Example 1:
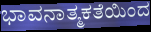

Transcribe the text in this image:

ಭಾವನಾತ್ಮಕತೆಯಿಂದ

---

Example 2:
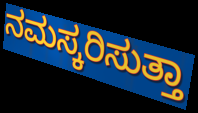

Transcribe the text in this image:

ನಮಸ್ಕರಿಸುತ್ತಾ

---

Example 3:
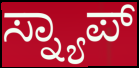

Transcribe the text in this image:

ಸ್ನ್ಯಾಪ್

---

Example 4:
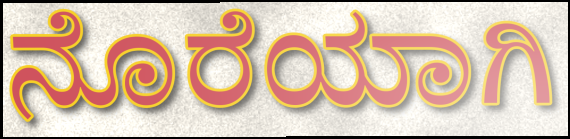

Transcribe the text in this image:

ನೊರೆಯಾಗಿ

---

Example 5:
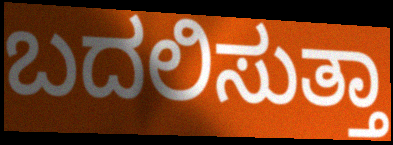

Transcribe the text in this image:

ಬದಲಿಸುತ್ತಾ